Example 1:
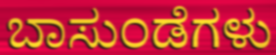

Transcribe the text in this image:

ಬಾಸುಂಡೆಗಳು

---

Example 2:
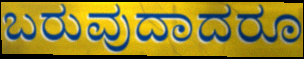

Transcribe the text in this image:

ಬರುವುದಾದರೂ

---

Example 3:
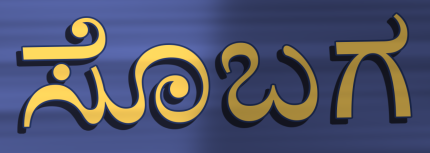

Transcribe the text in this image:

ಸೊಬಗ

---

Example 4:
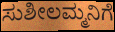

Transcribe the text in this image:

ಸುಶೀಲಮ್ಮನಿಗೆ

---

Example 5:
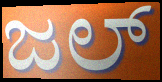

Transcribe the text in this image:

ಜಲ್